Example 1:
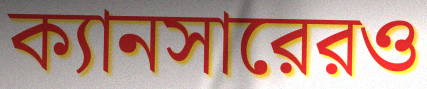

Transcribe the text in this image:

ক্যানসারেরও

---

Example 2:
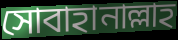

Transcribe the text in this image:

সোবাহানাল্লাহ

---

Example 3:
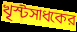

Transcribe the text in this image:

খৃস্টসাধকের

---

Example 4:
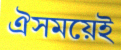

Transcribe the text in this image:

ঐসময়েই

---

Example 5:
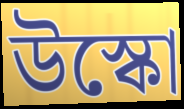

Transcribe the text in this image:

উস্কো